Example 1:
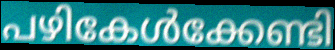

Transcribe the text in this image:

പഴികേൾക്കേണ്ടി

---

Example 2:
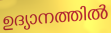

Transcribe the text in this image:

ഉദ്യാനത്തിൽ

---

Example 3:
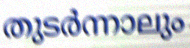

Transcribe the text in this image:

തുടർന്നാലും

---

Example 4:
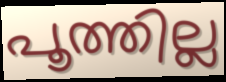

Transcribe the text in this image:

പൂത്തില്ല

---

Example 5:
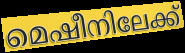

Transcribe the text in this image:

മെഷീനിലേക്ക്